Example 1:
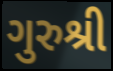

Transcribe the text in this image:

ગુરુશ્રી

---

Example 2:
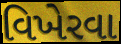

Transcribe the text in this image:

વિખેરવા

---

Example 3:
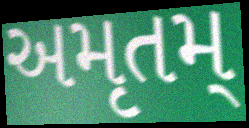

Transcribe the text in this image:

અમૃતમ્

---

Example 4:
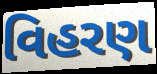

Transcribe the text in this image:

વિહરણ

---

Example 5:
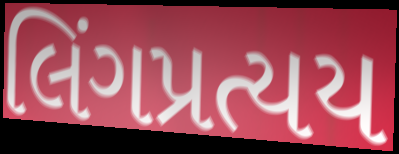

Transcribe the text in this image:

લિંગપ્રત્યય